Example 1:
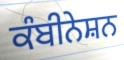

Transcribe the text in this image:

ਕੰਬੀਨੇਸ਼ਨ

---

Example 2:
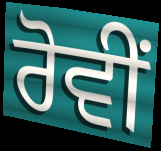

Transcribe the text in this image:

ਰੋਵੀਂ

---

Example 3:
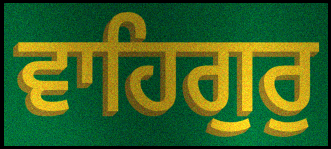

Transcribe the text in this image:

ਵਾਹਿਗੁਰੁ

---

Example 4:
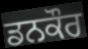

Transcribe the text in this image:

ਡਨਕੌਰ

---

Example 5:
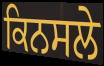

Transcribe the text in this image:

ਕਿਨਸਲੇ